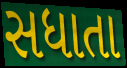
સધાતા